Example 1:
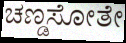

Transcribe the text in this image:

ಚಣ್ಡಸೋತೇ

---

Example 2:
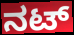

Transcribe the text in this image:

ನಟ್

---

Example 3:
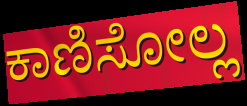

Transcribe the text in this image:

ಕಾಣಿಸೋಲ್ಲ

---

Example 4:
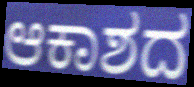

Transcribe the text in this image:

ಆಕಾಶದ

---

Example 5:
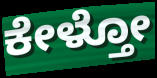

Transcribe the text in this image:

ಕೇಳ್ತೋ